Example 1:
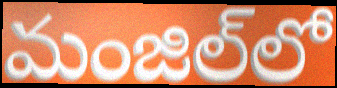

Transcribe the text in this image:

మంజిల్‌లో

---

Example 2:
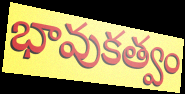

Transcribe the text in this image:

భావుకత్వం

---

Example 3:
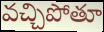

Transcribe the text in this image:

వచ్చిపోతూ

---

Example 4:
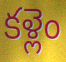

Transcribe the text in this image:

కళ్లెం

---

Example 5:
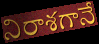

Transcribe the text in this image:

నిరాశగానే